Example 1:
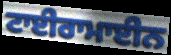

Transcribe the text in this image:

ਟਾਈਰਾਮਾਈਨ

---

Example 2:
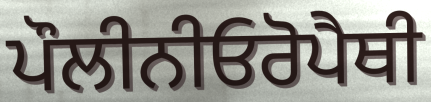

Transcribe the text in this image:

ਪੌਲੀਨੀਓਰੋਪੈਥੀ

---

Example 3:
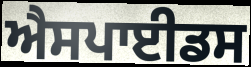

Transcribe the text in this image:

ਐਸਪਾਈਡਸ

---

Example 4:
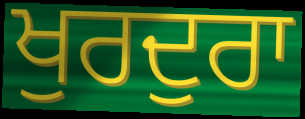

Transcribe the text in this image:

ਖੁਰਦੁਰਾ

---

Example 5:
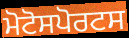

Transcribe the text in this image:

ਮੋਟੋਸਪੋਰਟਸ